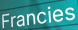
Francies